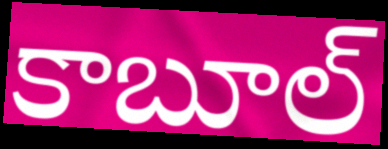
కాబూల్